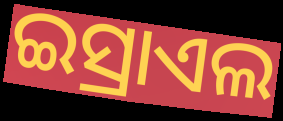
ଇସ୍ରାଏଲ